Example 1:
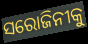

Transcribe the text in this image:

ସରୋଜିନୀକୁ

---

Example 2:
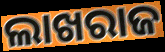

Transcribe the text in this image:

ଲାଖରାଜ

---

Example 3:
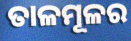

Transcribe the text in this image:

ତାଳମୂଳର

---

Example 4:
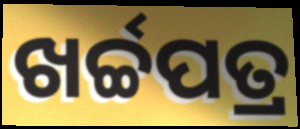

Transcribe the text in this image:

ଖର୍ଚ୍ଚପତ୍ର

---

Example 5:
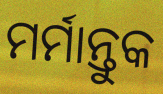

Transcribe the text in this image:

ମର୍ମାନ୍ତୁକ